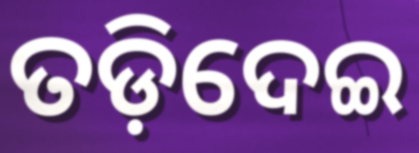
ତଡ଼ିଦେଇ